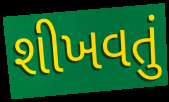
શીખવતું